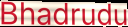
Bhadrudu